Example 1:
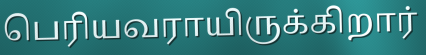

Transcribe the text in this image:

பெரியவராயிருக்கிறார்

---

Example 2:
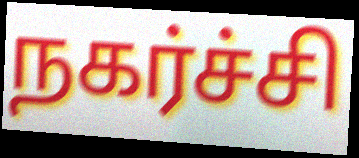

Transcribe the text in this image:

நகர்ச்சி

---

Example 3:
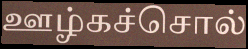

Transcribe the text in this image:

ஊழ்கச்சொல்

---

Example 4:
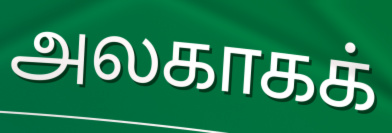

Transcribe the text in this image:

அலகாகக்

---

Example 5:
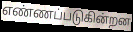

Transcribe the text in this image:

எண்ணப்படுகின்றன